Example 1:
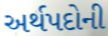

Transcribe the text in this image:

અર્થપદોની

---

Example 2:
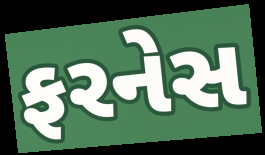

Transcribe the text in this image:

ફરનેસ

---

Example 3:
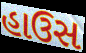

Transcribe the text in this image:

હાઉસ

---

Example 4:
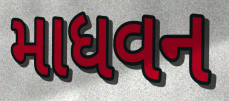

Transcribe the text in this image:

માધવન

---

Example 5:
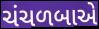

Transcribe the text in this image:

ચંચળબાએ